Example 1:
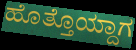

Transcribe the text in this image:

ಹೊತ್ತೊಯ್ದಾಗ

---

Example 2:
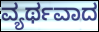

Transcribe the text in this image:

ವ್ಯರ್ಥವಾದ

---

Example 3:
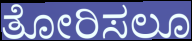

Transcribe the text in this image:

ತೋರಿಸಲೂ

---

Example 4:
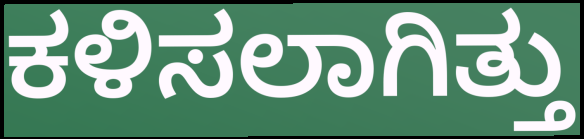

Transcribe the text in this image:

ಕಳಿಸಲಾಗಿತ್ತು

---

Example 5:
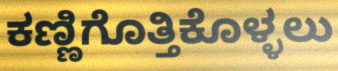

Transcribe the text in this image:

ಕಣ್ಣಿಗೊತ್ತಿಕೊಳ್ಳಲು